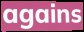
agains